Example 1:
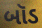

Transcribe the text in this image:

બૉડ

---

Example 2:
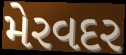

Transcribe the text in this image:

મેરવદર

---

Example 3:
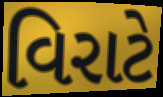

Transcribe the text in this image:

વિરાટે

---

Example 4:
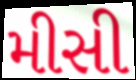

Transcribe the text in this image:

મીસી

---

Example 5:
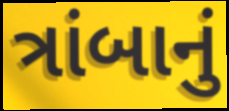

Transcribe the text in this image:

ત્રાંબાનું